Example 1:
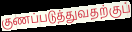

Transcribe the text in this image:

குணப்படுத்துவதற்குப்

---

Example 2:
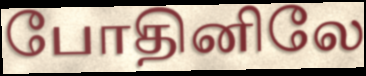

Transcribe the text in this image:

போதினிலே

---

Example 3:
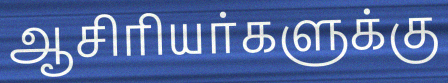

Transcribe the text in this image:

ஆசிரியர்களுக்கு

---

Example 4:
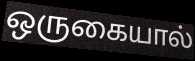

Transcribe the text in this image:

ஒருகையால்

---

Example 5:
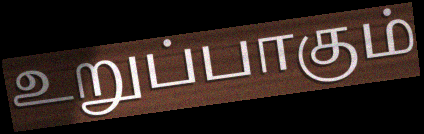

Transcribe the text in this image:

உறுப்பாகும்